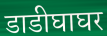
डाडीघाघर